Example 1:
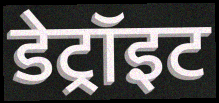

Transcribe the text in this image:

डेट्रॉइट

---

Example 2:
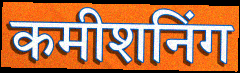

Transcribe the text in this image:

कमीशनिंग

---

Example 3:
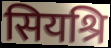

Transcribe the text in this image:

सियश्रि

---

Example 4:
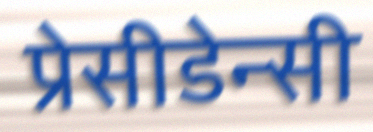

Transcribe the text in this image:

प्रेसीडेन्सी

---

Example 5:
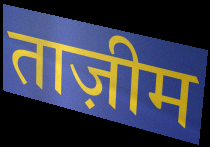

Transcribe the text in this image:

ताज़ीम